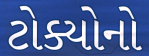
ટોક્યોનો